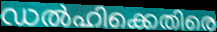
ഡൽഹിക്കെതിരെ